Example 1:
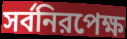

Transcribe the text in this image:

সর্বনিরপেক্ষ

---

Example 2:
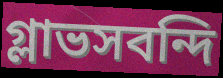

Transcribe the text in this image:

গ্লাভসবন্দি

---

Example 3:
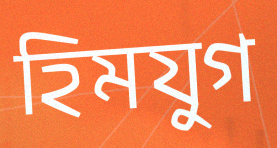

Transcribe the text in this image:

হিমযুগ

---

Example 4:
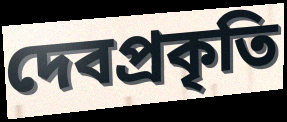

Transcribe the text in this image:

দেবপ্রকৃতি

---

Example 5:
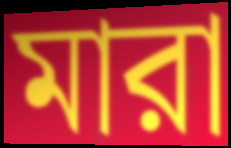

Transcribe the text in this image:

মারা